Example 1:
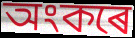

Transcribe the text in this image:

অংকৰে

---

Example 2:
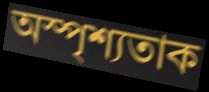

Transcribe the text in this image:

অস্পৃশ্যতাক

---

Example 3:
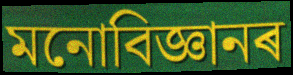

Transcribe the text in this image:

মনোবিজ্ঞানৰ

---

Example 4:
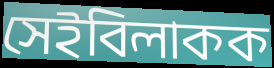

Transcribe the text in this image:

সেইবিলাকক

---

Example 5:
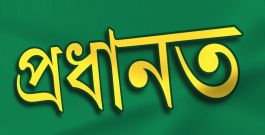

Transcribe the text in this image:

প্ৰধানত